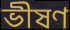
ভীষণ